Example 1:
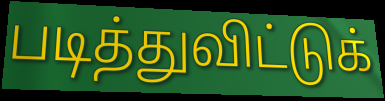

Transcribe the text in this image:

படித்துவிட்டுக்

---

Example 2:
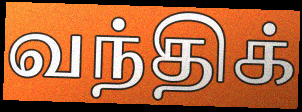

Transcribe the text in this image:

வந்திக்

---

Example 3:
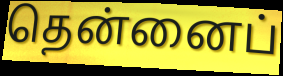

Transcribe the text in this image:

தென்னைப்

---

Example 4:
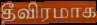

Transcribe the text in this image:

தீவிரமாக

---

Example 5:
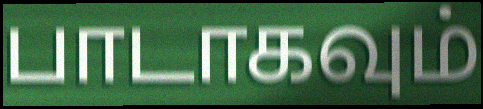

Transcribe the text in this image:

பாடாகவும்